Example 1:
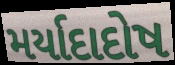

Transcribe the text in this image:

મર્યાદાદોષ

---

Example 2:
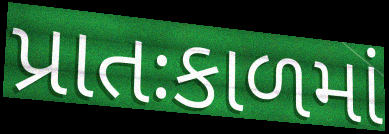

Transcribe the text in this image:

પ્રાતઃકાળમાં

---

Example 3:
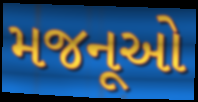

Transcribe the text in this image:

મજનૂઓ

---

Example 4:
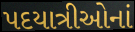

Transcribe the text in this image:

પદયાત્રીઓનાં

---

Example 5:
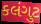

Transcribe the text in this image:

કલંગુટ